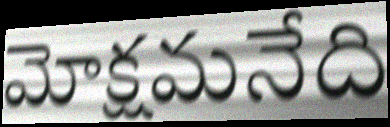
మోక్షమనేది